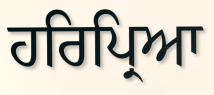
ਹਰਿਪ੍ਰਿਆ